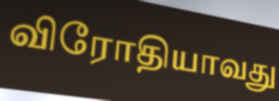
விரோதியாவது